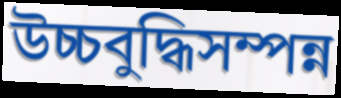
উচ্চবুদ্ধিসম্পন্ন